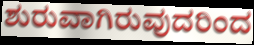
ಶುರುವಾಗಿರುವುದರಿಂದ